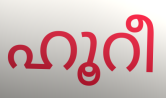
ഹൂറീ